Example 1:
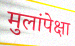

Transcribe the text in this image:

मुलांपेक्षा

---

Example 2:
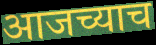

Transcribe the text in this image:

आजच्याच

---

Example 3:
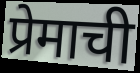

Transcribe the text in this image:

प्रेमाची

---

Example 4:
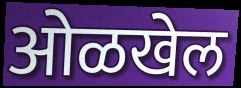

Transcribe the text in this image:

ओळखेल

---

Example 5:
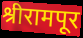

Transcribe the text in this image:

श्रीरामपूर